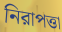
নিরাপত্তা